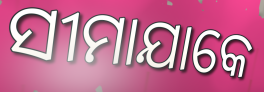
ସୀମାଯାକେ